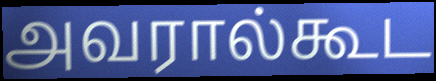
அவரால்கூட